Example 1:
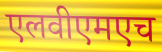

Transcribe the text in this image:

एलवीएमएच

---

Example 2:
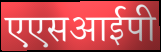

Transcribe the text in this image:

एएसआईपी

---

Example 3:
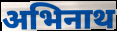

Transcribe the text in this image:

अभिनाथ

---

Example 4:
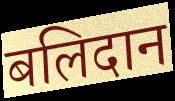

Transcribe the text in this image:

बलिदान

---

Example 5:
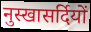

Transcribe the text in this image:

नुस्खासर्दियों